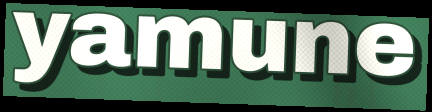
yamune